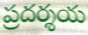
ప్రదర్శయ